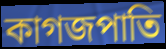
কাগজপাতি